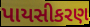
પાયસીકરણ